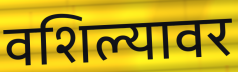
वशिल्यावर